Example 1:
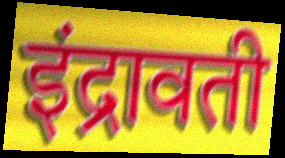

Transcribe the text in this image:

इंद्रावती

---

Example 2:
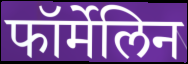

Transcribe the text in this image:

फॉर्मेलिन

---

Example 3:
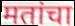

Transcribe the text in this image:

मतांचा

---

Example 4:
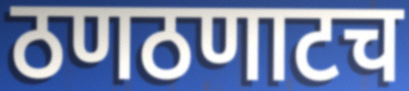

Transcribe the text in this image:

ठणठणाटच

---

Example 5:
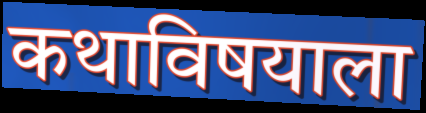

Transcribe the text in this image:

कथाविषयाला